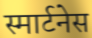
स्मार्टनेस